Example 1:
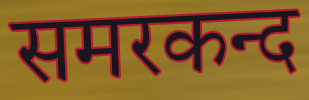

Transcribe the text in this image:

समरकन्द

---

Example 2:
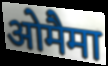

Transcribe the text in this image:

ओमैमा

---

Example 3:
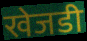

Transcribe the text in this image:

खेजडी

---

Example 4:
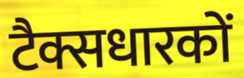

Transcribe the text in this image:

टैक्सधारकों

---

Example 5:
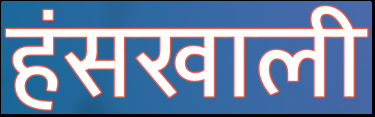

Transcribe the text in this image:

हंसखाली